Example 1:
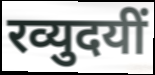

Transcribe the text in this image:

रव्युदयीं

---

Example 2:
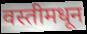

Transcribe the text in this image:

वस्तीमधून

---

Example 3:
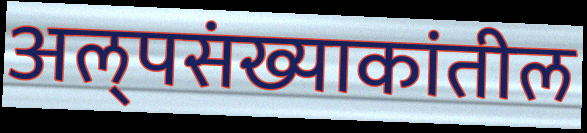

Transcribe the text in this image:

अल्पसंख्याकांतील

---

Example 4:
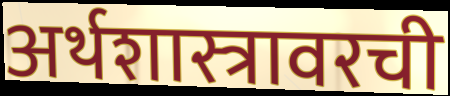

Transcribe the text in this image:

अर्थशास्त्रावरची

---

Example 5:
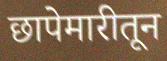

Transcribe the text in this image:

छापेमारीतून